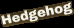
Hedgehog